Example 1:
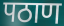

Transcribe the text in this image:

पठाण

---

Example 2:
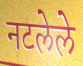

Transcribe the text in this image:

नटलेले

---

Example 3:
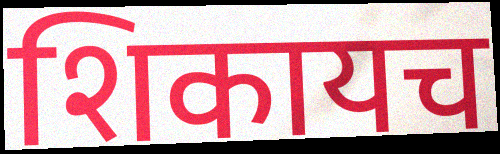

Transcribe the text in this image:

शिकायच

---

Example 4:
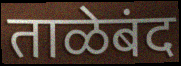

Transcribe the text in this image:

ताळेबंद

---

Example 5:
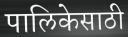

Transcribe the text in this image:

पालिकेसाठी